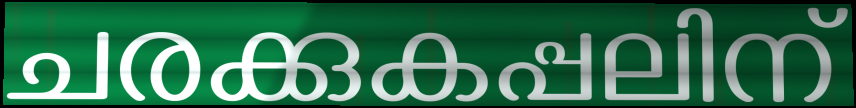
ചരക്കുകപ്പലിന്